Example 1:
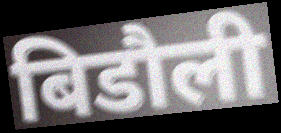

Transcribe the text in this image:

बिडौली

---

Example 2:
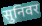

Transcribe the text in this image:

सुनिवर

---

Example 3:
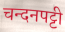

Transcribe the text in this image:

चन्दनपट्टी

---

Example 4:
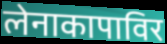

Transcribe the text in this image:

लेनाकापाविर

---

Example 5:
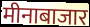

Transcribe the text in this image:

मीनाबाजार